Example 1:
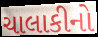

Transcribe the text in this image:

ચાલાકીનો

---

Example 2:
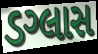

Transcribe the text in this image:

ડગ્લાસ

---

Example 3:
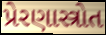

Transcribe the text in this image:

પ્રેરણાસ્ત્રોત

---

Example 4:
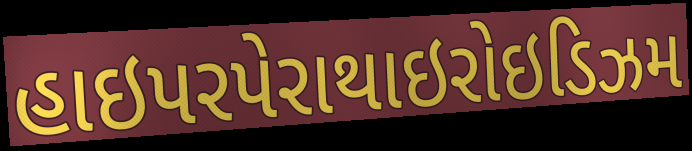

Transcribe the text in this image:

હાઇપરપેરાથાઇરોઇડિઝમ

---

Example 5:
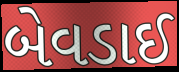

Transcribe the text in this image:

બેવડાઈ